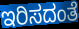
ಇರಿಸದಂತೆ